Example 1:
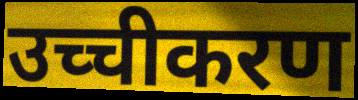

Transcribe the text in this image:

उच्चीकरण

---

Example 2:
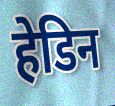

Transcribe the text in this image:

हेडिन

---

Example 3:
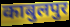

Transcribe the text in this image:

काबुलपुर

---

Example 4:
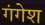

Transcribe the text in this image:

गंगेश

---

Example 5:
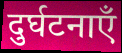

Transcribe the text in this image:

दुर्घटनाएँ